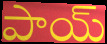
పాయ్